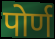
पोर्ण